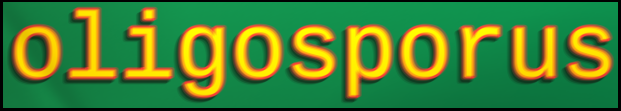
oligosporus